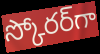
స్కోరర్‌గా